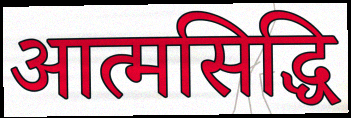
आत्मसिद्धि